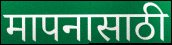
मापनासाठी